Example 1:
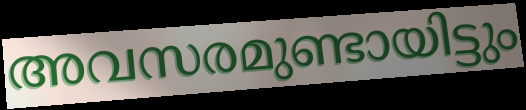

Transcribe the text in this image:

അവസരമുണ്ടായിട്ടും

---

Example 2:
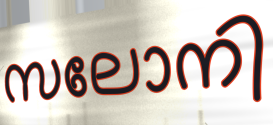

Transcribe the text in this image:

സലോനി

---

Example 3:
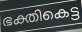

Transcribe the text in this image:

ഭക്തികെട്ട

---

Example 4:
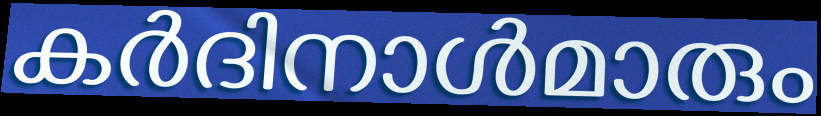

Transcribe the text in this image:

കർദിനാൾമാരും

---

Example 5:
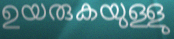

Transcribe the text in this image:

ഉയരുകയുള്ളു